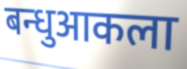
बन्धुआकला